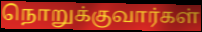
நொறுக்குவார்கள்